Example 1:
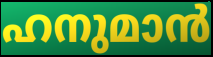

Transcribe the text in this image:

ഹനുമാൻ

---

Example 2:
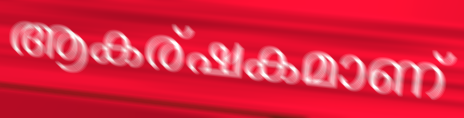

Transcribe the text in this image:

ആകര്ഷകമാണ്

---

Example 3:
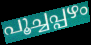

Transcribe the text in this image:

പൂച്ചപ്പഴം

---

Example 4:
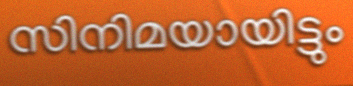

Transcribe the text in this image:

സിനിമയായിട്ടും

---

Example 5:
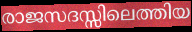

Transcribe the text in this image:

രാജസദസ്സിലെത്തിയ